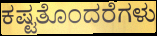
ಕಷ್ಟತೊಂದರೆಗಳು